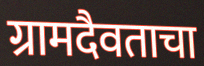
ग्रामदैवताचा